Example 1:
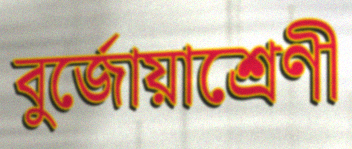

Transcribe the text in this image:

বুর্জোয়াশ্রেণী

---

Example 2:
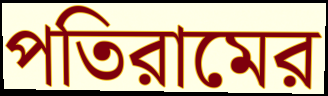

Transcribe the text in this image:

পতিরামের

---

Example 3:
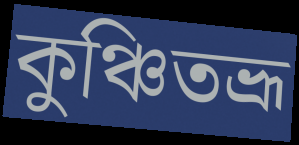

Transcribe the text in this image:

কুঞ্চিতভ্রূ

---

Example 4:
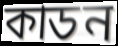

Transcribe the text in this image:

কাডন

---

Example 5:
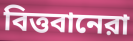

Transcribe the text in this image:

বিত্তবানেরা